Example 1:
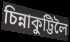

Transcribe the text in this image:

চিন্নাকুট্টিলৈ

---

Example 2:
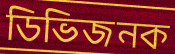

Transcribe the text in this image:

ডিভিজনক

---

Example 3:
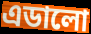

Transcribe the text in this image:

এডালো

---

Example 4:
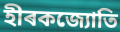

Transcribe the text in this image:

হীৰকজ্যোতি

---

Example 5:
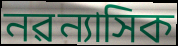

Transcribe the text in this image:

নৱন্যাসিক